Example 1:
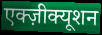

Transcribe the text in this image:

एक्ज़ीक्यूशन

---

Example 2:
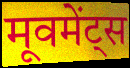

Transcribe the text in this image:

मूवमेंट्स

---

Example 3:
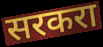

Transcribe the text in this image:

सरकरा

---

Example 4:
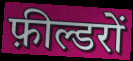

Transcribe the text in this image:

फ़ील्डरों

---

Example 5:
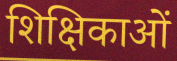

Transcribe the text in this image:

शिक्षिकाओं